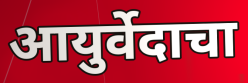
आयुर्वेदाचा